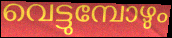
വെട്ടുമ്പോഴും